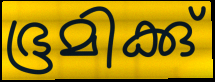
ഭൂമിക്കു്